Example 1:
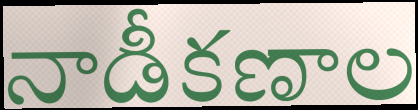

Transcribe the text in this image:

నాడీకణాల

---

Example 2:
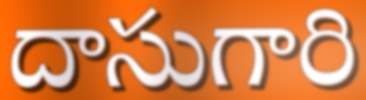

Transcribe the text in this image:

దాసుగారి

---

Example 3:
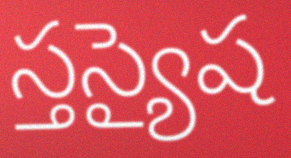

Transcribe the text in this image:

స్తస్యైష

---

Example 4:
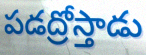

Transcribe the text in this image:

పడద్రోస్తాడు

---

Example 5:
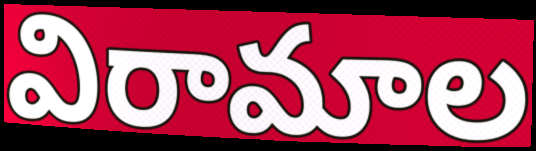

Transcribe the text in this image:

విరామాల